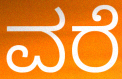
ವರೆ